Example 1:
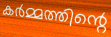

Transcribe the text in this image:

കർമ്മത്തിന്റെ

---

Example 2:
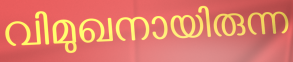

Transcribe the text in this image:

വിമുഖനായിരുന്ന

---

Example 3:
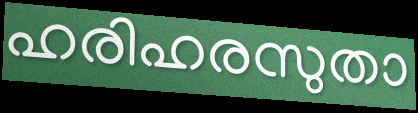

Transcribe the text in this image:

ഹരിഹരസുതാ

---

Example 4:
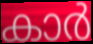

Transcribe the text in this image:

കാർ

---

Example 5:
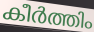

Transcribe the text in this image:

കീർത്തിം